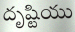
దృష్టియు